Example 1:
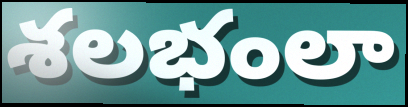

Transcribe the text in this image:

శలభంలా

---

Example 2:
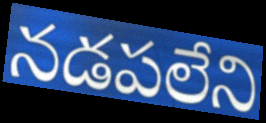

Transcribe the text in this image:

నడపలేని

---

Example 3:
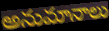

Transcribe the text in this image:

అనుమానాలు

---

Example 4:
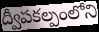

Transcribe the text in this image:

ద్వీపకల్పంలోని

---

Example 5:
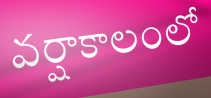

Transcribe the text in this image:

వర్షాకాలంలో